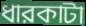
ধারকাটা